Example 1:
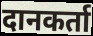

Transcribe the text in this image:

दानकर्ता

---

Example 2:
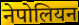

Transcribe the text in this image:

नेपोलियन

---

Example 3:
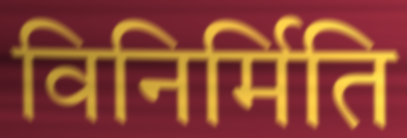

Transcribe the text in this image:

विनिर्मिति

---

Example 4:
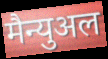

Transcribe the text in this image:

मैन्युअल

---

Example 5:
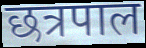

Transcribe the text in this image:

छत्रपाल